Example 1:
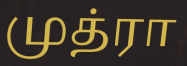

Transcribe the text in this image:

முத்ரா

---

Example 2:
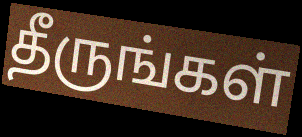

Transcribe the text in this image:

தீருங்கள்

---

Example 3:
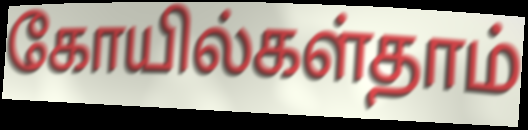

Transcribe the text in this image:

கோயில்கள்தாம்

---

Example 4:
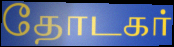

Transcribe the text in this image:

தோடகர்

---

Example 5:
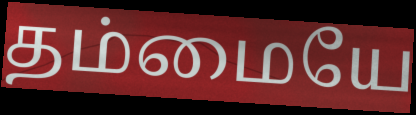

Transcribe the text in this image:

தம்மையே